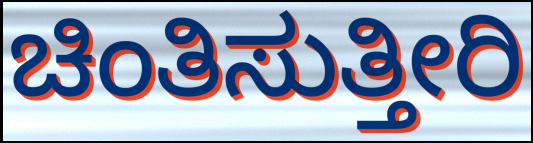
ಚಿಂತಿಸುತ್ತೀರಿ